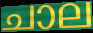
ചാല